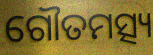
ଗୌତମତ୍ସ୍ୟ